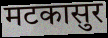
मटकासुर